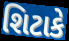
શિટાકે